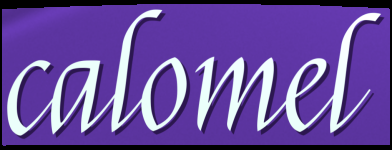
calomel